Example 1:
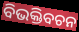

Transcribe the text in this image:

ବିଭକ୍ତିବଚନ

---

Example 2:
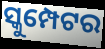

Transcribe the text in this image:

ସ୍କୁମ୍ପେଟର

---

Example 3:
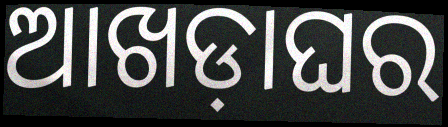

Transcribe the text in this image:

ଆଖଡ଼ାଘର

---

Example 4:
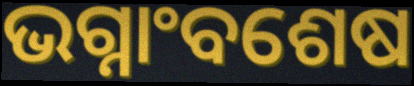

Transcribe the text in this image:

ଭଗ୍ନାଂବଶେଷ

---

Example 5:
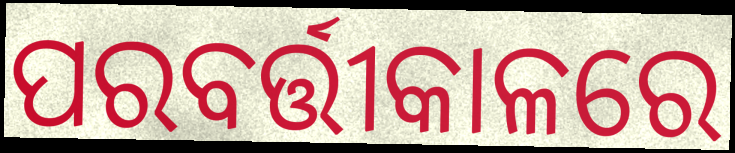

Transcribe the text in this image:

ପରବର୍ତ୍ତୀକାଳରେ